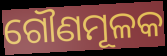
ଗୌଣମୂଳକ